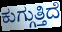
ಕುಗ್ಗುತ್ತಿದೆ